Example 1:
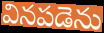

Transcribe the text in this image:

వినపడెను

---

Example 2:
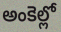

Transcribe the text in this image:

అంకెల్లో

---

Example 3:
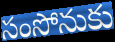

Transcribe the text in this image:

సంసోనుకు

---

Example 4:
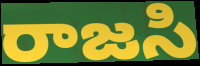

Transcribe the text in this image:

రాజసి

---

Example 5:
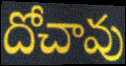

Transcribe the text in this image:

దోచావు